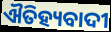
ଐତିହ୍ୟବାଦୀ